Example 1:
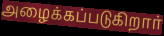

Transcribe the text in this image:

அழைக்கப்படுகிறார்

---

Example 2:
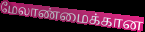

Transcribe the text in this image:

மேலாண்மைக்கான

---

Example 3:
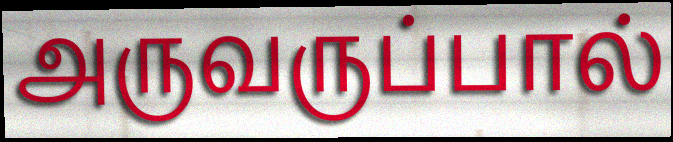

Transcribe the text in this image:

அருவருப்பால்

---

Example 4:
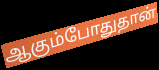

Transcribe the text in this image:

ஆகும்போதுதான்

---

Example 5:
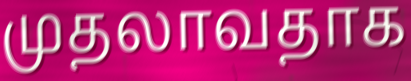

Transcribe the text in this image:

முதலாவதாக